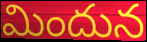
మిందున